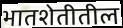
भातशेतीतील